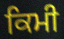
ਕਿਮੀ